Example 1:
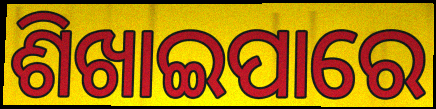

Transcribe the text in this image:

ଶିଖାଇପାରେ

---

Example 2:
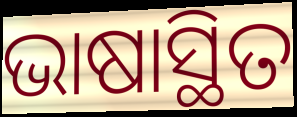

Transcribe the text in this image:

ଭାଷାସ୍ଥିତ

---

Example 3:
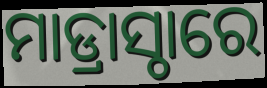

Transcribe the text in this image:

ମାଡ୍ରାସ୍ଠାରେ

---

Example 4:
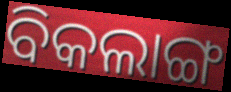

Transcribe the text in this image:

ବିକଲାଙ୍ଗ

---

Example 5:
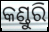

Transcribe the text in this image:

କଣ୍ଡୁରି